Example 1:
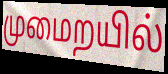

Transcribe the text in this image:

முமைறயில்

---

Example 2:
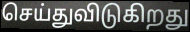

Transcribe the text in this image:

செய்துவிடுகிறது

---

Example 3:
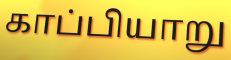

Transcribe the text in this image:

காப்பியாறு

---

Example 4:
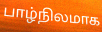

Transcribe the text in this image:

பாழ்நிலமாக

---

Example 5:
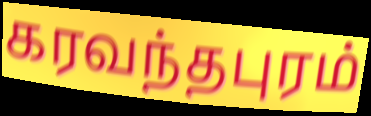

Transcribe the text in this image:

கரவந்தபுரம்